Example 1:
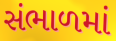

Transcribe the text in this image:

સંભાળમાં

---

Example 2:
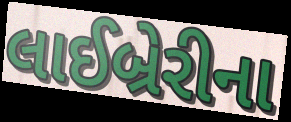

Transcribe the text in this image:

લાઈબ્રેરીના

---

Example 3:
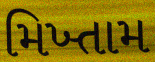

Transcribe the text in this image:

મિખ્તામ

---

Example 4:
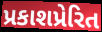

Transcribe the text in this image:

પ્રકાશપ્રેરિત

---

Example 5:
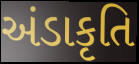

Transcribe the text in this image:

અંડાકૃતિ